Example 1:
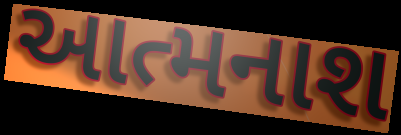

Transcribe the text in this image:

આત્મનાશ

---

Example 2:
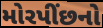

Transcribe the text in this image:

મોરપીંછનો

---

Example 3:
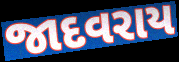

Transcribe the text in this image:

જાદવરાય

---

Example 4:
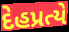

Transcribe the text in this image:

દેહપ્રત્યે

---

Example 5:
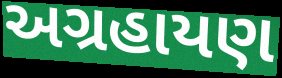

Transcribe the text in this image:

અગ્રહાયણ